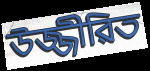
উজ্জীৱিত